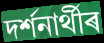
দৰ্শনাৰ্থীৰ